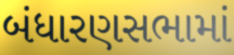
બંધારણસભામાં